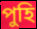
পুহি